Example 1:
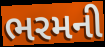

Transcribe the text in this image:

ભરમની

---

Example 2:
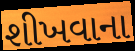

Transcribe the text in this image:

શીખવાના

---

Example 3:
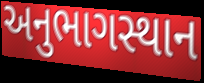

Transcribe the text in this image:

અનુભાગસ્થાન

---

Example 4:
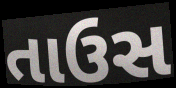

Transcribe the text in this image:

તાઉસ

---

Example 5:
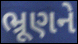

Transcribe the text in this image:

ભ્રૂણને